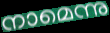
നാമെന്നു